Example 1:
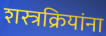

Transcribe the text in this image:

शस्त्रक्रियांना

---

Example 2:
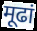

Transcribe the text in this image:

मूढां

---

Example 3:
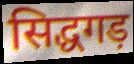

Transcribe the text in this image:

सिद्धगड़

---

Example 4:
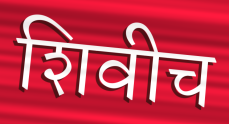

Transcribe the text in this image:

शिवीच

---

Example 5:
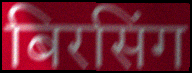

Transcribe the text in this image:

बिरसिंग